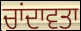
ਚਾਂਦਾਵਤਾ